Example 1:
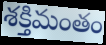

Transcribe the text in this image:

శక్తిమంతం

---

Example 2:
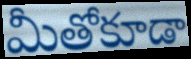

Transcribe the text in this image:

మీతోకూడా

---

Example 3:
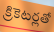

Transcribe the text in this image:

క్రికెటర్లతో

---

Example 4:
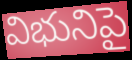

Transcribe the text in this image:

విభునిపై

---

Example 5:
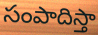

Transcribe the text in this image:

సంపాదిస్తా